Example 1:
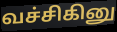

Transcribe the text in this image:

வச்சிகினு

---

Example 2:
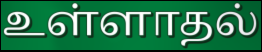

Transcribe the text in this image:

உள்ளாதல்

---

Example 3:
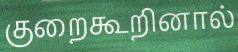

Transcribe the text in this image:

குறைகூறினால்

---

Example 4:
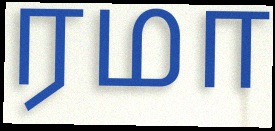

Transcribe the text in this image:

ரமா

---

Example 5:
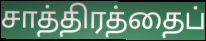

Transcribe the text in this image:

சாத்திரத்தைப்